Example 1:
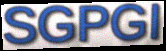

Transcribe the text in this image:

SGPGI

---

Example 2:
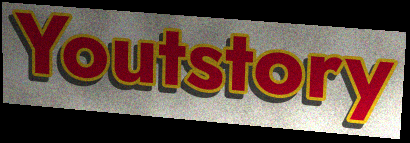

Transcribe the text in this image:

Youtstory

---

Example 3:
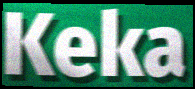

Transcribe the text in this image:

Keka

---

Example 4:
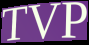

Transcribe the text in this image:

TVP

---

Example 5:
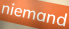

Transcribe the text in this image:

niemand